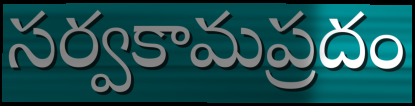
సర్వకామప్రదం